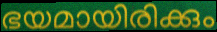
ഭയമായിരിക്കും